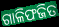
ଗାଳିଫଜିତ